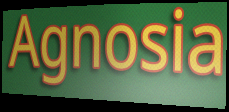
Agnosia